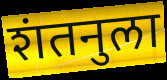
शंतनुला